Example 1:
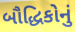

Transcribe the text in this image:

બૌદ્ધિકોનું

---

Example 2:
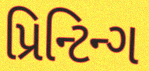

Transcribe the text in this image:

પ્રિન્ટિન્ગ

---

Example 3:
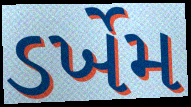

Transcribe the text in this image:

ડર્ખેમ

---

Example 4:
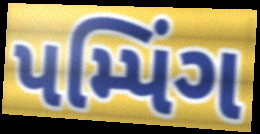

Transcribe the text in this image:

પમ્પિંગ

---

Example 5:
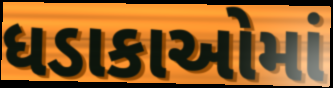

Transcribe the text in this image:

ધડાકાઓમાં